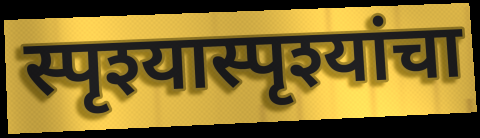
स्पृश्यास्पृश्यांचा